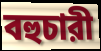
বহুচারী